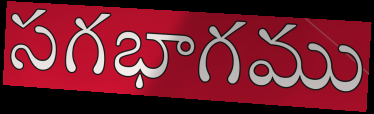
సగభాగము